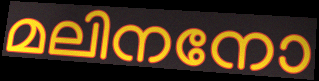
മലിനനോ